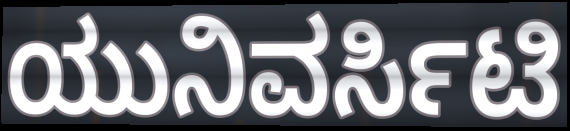
ಯುನಿವರ್ಸಿಟಿ